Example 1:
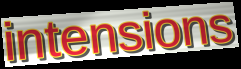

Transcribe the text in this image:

intensions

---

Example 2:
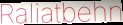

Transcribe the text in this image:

Raliatbehn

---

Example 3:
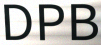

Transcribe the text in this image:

DPB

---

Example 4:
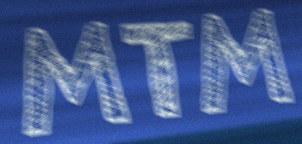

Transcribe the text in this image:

MTM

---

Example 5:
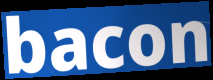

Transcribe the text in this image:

bacon